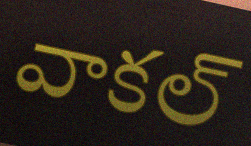
వాకల్